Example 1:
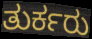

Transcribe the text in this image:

ತುರ್ಕರು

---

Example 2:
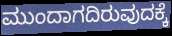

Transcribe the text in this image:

ಮುಂದಾಗದಿರುವುದಕ್ಕೆ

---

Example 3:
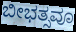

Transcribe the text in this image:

ಬೀಭತ್ಸವೂ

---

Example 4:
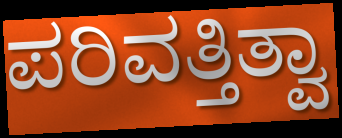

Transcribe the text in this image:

ಪರಿವತ್ತಿತ್ವಾ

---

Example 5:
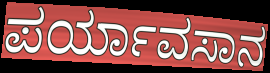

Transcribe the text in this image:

ಪರ್ಯಾವಸಾನ